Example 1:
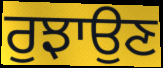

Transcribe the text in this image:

ਰੁਝਾਉਣ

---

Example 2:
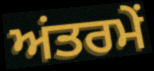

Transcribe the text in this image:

ਅਂਤਰਮੇਂ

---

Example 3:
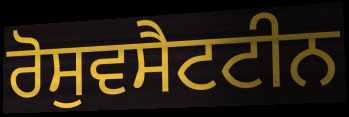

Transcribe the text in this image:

ਰੋਸੁਵਸੈਟਟੀਨ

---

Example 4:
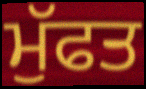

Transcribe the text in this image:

ਮੁੱਫਤ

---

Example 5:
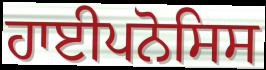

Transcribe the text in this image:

ਹਾਈਪਨੋਸਿਸ